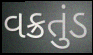
વક્રતુંડ